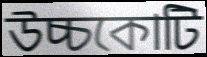
উচ্চকোটি